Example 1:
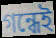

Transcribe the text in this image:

গন্ধেই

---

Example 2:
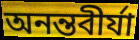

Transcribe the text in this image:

অনন্তবীর্যা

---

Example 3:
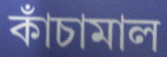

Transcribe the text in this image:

কাঁচামাল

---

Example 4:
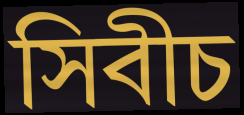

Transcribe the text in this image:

সিবীচ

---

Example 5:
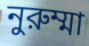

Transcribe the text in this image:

নুরুম্মা